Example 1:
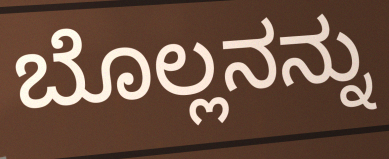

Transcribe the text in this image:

ಬೊಲ್ಲನನ್ನು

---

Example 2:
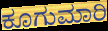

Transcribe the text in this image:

ಕೂಗುಮಾರಿ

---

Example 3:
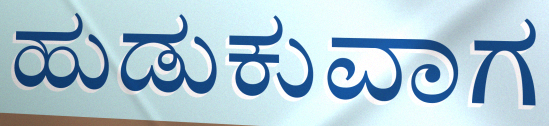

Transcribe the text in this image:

ಹುಡುಕುವಾಗ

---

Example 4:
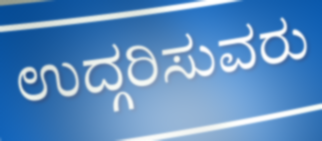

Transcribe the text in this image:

ಉದ್ಗರಿಸುವರು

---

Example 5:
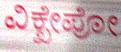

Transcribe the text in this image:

ವಿಕ್ಖೇಪೋ